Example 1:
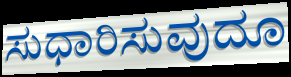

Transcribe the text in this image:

ಸುಧಾರಿಸುವುದೂ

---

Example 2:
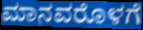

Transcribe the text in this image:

ಮಾನವರೊಳಗೆ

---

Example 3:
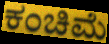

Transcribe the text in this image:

ಕಂಚಿಮೆ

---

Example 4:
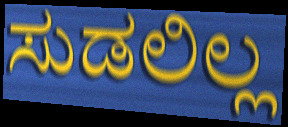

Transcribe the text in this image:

ಸುಡಲಿಲ್ಲ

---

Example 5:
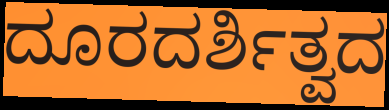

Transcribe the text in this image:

ದೂರದರ್ಶಿತ್ವದ